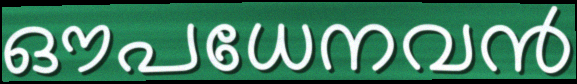
ഔപധേനവൻ